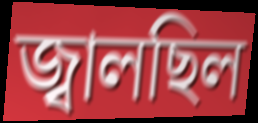
জ্বালছিল